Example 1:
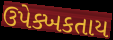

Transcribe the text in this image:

ઉપેક્ખકતાય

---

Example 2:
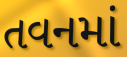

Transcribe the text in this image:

તવનમાં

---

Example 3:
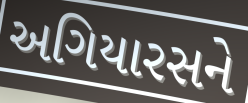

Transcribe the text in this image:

અગિયારસને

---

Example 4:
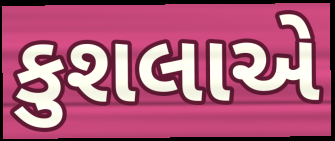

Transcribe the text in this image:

કુશલાએ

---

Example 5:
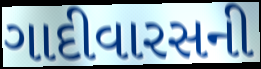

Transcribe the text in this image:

ગાદીવારસની